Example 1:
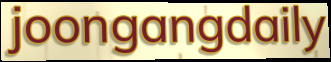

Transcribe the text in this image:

joongangdaily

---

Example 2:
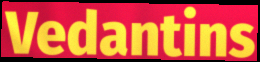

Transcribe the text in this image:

Vedantins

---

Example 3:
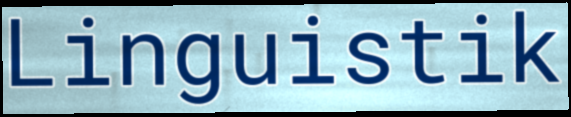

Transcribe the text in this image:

Linguistik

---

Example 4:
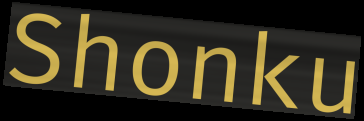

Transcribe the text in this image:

Shonku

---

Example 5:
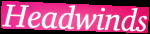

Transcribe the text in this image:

Headwinds